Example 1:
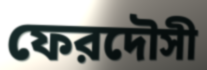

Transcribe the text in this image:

ফেরদৌসী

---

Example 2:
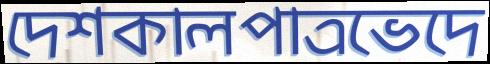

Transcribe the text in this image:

দেশকালপাত্রভেদে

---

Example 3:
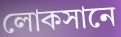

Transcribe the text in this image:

লোকসানে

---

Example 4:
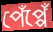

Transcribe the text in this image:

পেঁপ্পেঁ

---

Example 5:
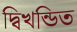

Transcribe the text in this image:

দ্বিখন্ডিত